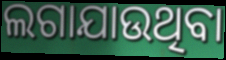
ଲଗାଯାଉଥିବା